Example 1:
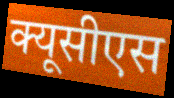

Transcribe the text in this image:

क्यूसीएस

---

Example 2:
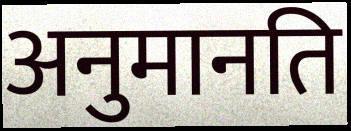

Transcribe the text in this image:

अनुमानति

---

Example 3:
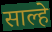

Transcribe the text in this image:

साल्हे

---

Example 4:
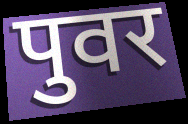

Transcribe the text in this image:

पुवर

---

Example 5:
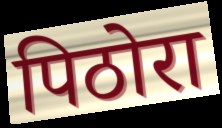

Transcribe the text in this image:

पिठोरा